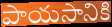
పాయసానికి